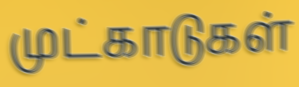
முட்காடுகள்